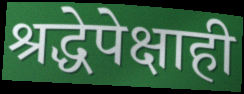
श्रद्धेपेक्षाही